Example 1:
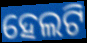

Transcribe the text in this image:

ହେଲଟି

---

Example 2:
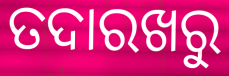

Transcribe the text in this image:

ତଦାରଖରୁ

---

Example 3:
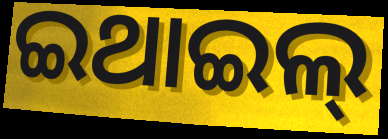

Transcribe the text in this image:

ଇଥାଇଲ୍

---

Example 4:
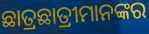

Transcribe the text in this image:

ଛାତ୍ରଛାତ୍ରୀମାନଙ୍କର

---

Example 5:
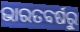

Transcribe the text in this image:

ଭାରତବର୍ଷରୁ